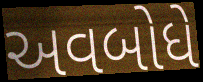
અવબોધે